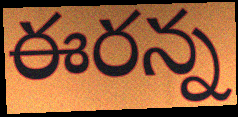
ఈరన్న